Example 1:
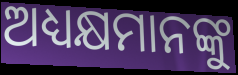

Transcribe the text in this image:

ଅଧ୍ୟକ୍ଷମାନଙ୍କୁ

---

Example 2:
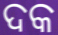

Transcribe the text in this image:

ଦକ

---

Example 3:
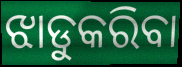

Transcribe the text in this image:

ଝାଡୁକରିବା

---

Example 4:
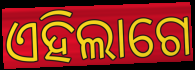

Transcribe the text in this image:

ଏହିଲାଗେ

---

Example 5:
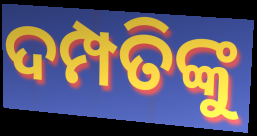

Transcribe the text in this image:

ଦମ୍ପତିଙ୍କୁ